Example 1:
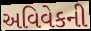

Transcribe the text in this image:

અવિવેકની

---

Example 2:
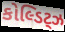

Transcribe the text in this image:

કોલ્ડિટ્ઝ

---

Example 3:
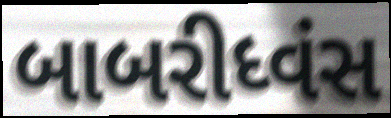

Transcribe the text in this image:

બાબરીધ્વંસ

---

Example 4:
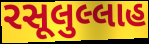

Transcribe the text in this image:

રસૂલુલ્લાહ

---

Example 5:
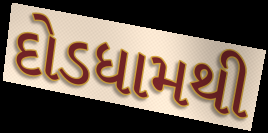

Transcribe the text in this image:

દોડધામથી